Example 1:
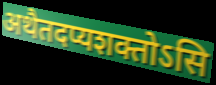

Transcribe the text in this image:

अथैतदप्यशक्तोऽसि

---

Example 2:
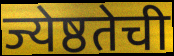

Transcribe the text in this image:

ज्येष्ठतेची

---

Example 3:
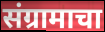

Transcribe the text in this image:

संग्रामाचा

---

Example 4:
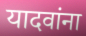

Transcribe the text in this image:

यादवांना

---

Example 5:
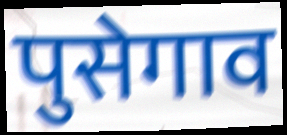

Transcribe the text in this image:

पुसेगाव